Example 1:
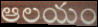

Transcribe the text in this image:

ఆలయం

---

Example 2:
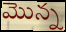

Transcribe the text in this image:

మొన్న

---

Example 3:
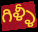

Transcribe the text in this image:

గిళ్ళీ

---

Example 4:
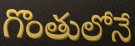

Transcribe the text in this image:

గొంతులోనే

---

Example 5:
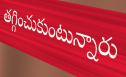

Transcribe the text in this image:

తగ్గించుకుంటున్నారు